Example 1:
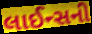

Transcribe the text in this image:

લાઈન્સની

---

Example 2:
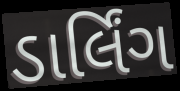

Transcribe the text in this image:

ડાર્લિંગ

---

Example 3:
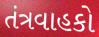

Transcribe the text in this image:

તંત્રવાહકો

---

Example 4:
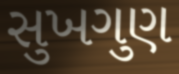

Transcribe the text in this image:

સુખગુણ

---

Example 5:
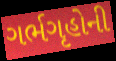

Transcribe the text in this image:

ગર્ભગૃહોની